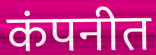
कंपनीत